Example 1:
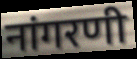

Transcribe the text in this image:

नांगरणी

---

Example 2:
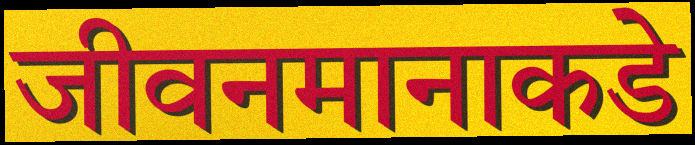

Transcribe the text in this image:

जीवनमानाकडे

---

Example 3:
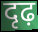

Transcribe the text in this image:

दृढ़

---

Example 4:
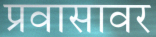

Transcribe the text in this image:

प्रवासावर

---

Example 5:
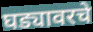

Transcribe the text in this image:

घड्यावरचे